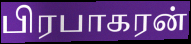
பிரபாகரன்